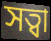
সত্বা